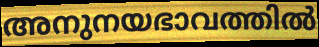
അനുനയഭാവത്തിൽ